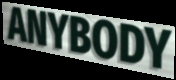
ANYBODY